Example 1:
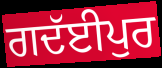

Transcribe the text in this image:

ਗਦੱਈਪੁਰ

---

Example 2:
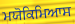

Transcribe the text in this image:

ਮਯੋਕਿਮਿਆਸ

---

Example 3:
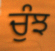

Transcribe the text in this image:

ਚੁੰਝ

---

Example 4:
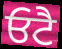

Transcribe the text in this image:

ਓਟੈ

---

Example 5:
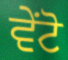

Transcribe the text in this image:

ਵੇਂਟੋ